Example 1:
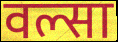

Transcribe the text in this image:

वल्सा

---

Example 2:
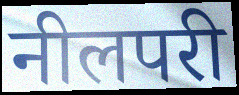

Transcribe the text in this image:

नीलपरी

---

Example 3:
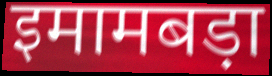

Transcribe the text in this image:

इमामबड़ा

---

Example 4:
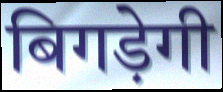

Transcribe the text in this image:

बिगड़ेगी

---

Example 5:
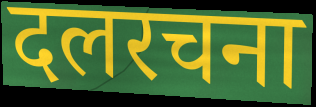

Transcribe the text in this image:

दलरचना